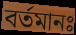
বর্তমানঃ